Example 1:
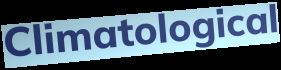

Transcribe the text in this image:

Climatological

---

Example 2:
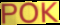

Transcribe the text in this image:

POK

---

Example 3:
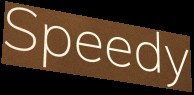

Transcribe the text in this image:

Speedy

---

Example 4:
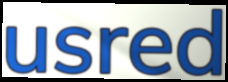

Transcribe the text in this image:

usred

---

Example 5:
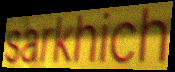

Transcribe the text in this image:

sarkhich